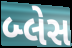
બ્લેસ